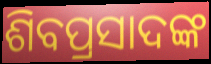
ଶିବପ୍ରସାଦଙ୍କ